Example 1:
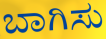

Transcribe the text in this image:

ಬಾಗಿಸು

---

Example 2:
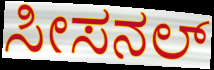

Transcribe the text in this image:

ಸೀಸನಲ್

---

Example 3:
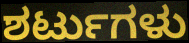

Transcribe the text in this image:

ಶರ್ಟುಗಳು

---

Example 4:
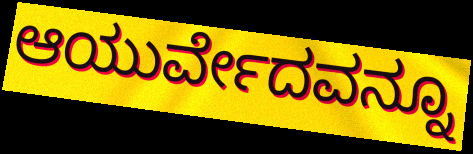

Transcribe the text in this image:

ಆಯುರ್ವೇದವನ್ನೂ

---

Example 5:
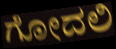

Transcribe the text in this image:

ಗೋದಲಿ